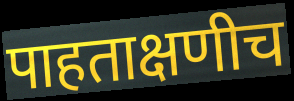
पाहताक्षणीच